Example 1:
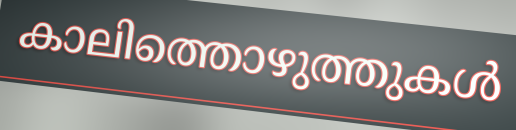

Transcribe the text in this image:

കാലിത്തൊഴുത്തുകൾ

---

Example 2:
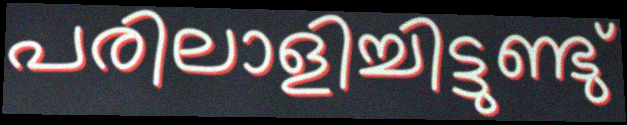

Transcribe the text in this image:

പരിലാളിച്ചിട്ടുണ്ടു്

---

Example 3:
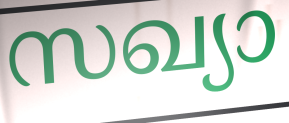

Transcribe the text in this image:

സഖ്യാ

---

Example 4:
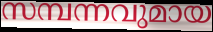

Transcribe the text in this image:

സമ്പന്നവുമായ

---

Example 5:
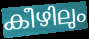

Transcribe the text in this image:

കീഴിലും